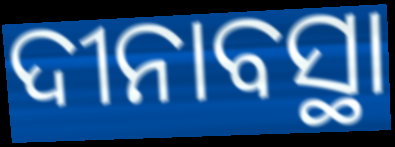
ଦୀନାବସ୍ଥା